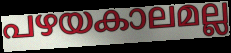
പഴയകാലമല്ല